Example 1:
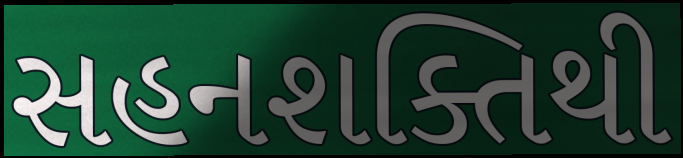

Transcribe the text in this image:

સહનશક્તિથી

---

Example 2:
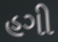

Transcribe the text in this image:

હગી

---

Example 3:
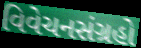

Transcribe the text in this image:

વિવેચનસંગ્રહો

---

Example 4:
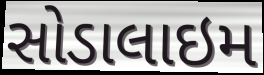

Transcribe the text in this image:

સોડાલાઇમ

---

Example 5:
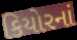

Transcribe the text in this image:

કિયોરનાં